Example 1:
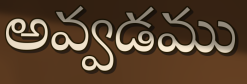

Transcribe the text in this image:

అవ్వడము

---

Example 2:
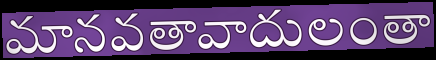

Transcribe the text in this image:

మానవతావాదులంతా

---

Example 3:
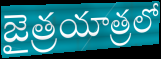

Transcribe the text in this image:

జైత్రయాత్రలో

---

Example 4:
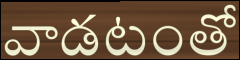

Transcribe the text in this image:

వాడటంతో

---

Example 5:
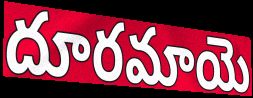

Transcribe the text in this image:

దూరమాయె